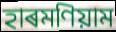
হাৰমণিয়াম